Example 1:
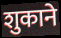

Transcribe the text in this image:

शुकाने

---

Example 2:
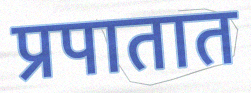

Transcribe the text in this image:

प्रपातात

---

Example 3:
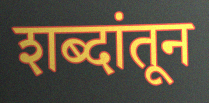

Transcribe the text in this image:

शब्दांतून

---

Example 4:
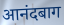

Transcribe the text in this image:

आनंदबाग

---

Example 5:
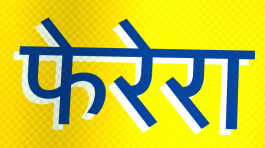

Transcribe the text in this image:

फेरेरा